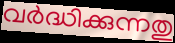
വർദ്ധിക്കുന്നതു